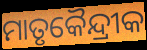
ମାତୃକୈନ୍ଦ୍ରୀକ